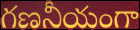
గణనీయంగా